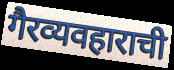
गैरव्यवहाराची